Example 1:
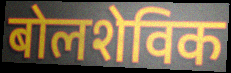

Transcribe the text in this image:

बोलशेविक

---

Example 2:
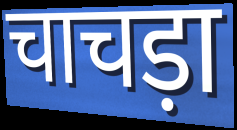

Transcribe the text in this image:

चाचड़ा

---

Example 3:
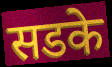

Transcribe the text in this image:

सडके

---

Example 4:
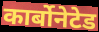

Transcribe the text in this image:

कार्बोनेटेड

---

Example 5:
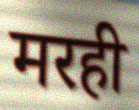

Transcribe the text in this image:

मरही